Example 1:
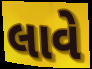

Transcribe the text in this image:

લાવે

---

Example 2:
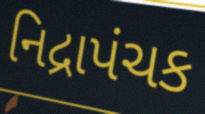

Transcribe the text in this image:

નિદ્રાપંચક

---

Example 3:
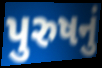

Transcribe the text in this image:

પુરુષનું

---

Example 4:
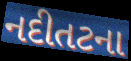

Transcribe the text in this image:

નદીતટના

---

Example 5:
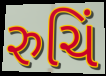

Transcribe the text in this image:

રુચિં